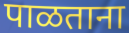
पाळताना